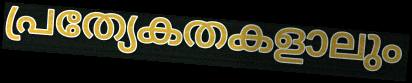
പ്രത്യേകതകളാലും